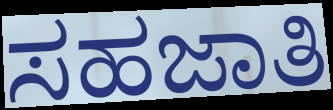
ಸಹಜಾತಿ